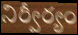
నిర్వీర్యం